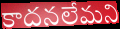
కాదనలేమని